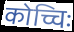
कोच्चिः